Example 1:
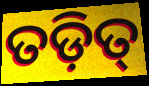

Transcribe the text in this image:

ତଡ଼ିତ୍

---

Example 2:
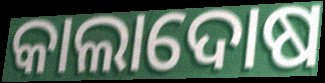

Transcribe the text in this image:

କାଲାଦୋଷ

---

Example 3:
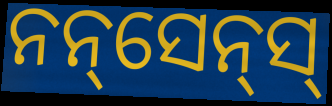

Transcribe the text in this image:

ନନ୍‌ସେନ୍‌ସ୍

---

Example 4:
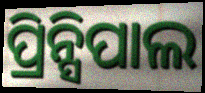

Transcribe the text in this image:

ପ୍ରିନ୍ସିପାଲ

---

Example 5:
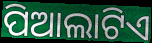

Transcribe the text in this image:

ପିଆଲାଟିଏ